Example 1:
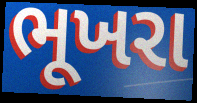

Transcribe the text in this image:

ભૂખરા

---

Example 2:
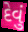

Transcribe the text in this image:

દેવું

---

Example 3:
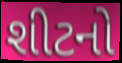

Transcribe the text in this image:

શીટનો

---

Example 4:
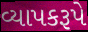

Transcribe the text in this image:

વ્યાપકરૂપે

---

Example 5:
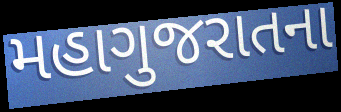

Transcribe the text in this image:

મહાગુજરાતના